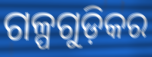
ଗଳ୍ପଗୁଡ଼ିକର